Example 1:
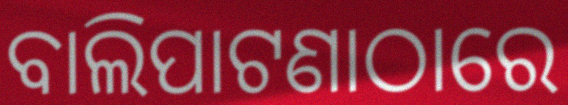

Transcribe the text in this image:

ବାଲିପାଟଣାଠାରେ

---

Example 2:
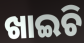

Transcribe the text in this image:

ଖାଇଚି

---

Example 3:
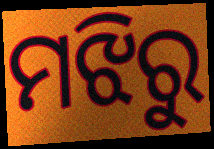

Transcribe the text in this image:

ମଝିରୁ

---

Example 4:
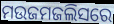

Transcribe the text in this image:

ମଉଜମଜଲିସରେ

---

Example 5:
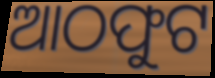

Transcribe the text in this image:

ଆଠଫୁଟ